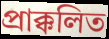
প্রাক্কলিত